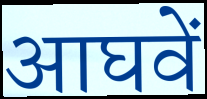
आघवें